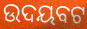
ଉଦୟବଟ